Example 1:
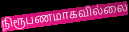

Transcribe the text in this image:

நிரூபணமாகவில்லை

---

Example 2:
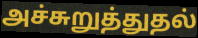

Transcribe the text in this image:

அச்சுறுத்துதல்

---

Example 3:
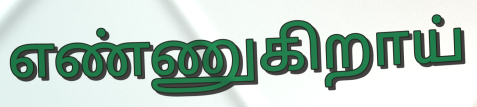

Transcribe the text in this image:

எண்ணுகிறாய்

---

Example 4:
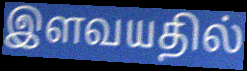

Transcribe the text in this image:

இளவயதில்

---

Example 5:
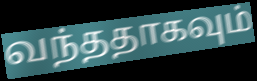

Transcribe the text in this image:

வந்ததாகவும்